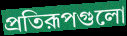
প্রতিরূপগুলো